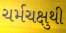
ચર્મચક્ષુથી